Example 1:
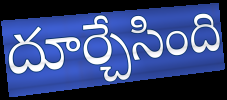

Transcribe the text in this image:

దూర్చేసింది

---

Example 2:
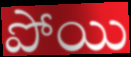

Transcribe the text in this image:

పోయి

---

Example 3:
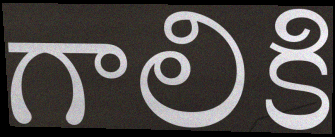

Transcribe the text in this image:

గాలికి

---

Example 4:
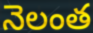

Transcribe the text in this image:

నెలంత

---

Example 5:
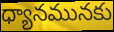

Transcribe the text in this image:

ధ్యానమునకు